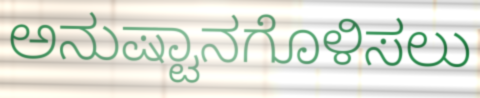
ಅನುಷ್ಟಾನಗೊಳಿಸಲು